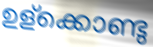
ഉള്ക്കൊണ്ടു